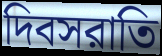
দিবসরাতি